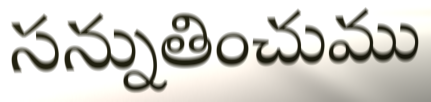
సన్నుతించుము